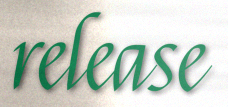
release